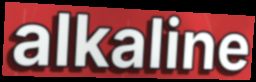
alkaline